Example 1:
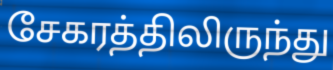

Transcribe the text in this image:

சேகரத்திலிருந்து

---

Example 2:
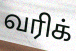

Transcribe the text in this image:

வரிக்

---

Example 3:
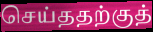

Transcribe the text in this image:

செய்ததற்குத்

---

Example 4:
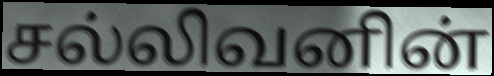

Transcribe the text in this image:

சல்லிவனின்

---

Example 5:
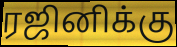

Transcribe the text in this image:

ரஜினிக்கு